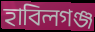
হাবিলগঞ্জ